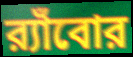
র‍্যাঁবোর